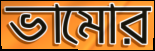
ভামোর